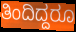
ತಿಂದಿದ್ದರೂ